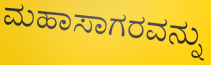
ಮಹಾಸಾಗರವನ್ನು